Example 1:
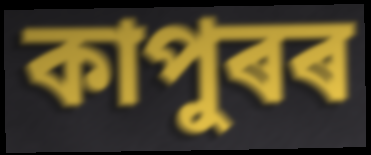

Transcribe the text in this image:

কাপুৰৰ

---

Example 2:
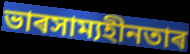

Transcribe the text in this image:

ভাৰসাম্যহীনতাৰ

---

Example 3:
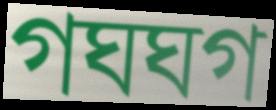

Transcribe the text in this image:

গঘঘগ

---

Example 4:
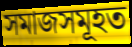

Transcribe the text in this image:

সমাজসমূহত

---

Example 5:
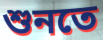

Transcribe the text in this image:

শুনতে